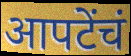
आपटेंचं